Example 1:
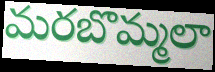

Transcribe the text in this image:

మరబొమ్మలా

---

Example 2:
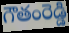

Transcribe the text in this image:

గౌతంరెడ్డి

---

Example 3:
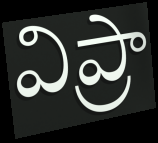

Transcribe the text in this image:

విప్రా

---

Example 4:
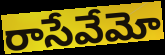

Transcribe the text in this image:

రాసేవేమో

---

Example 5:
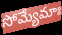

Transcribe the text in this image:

సోమ్యేమాః